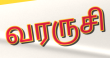
வரருசி